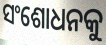
ସଂଶୋଧନକୁ